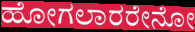
ಹೋಗಲಾರರೇನೋ